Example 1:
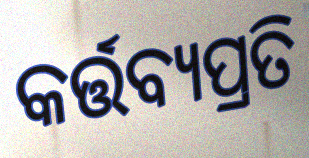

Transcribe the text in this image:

କର୍ତ୍ତବ୍ୟପ୍ରତି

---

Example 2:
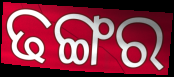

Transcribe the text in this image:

ଢଙ୍ଗର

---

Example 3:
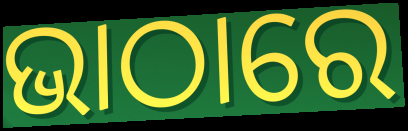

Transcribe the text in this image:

ଭାଠାରେ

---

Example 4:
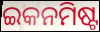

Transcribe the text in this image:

ଇକନମିଷ୍ଟ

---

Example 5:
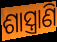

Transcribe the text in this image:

ଶାସ୍ତ୍ରାଣି